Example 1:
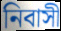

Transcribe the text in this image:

নিবাসী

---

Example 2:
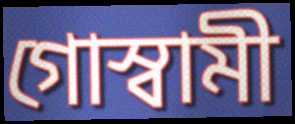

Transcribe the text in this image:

গোস্বামী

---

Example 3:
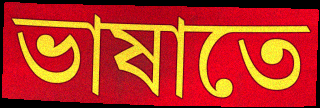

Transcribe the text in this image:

ভাষাতে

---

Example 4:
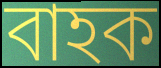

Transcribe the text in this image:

বাহক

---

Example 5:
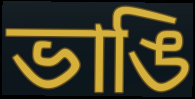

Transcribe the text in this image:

ভাঙি